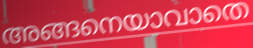
അങ്ങനെയാവാതെ